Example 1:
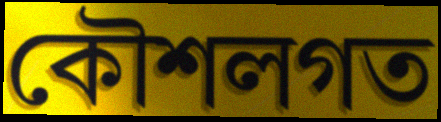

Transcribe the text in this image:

কৌশলগত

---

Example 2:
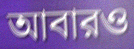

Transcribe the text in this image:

আবারও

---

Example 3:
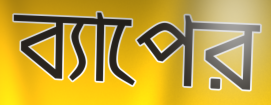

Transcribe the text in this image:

ব্যাপের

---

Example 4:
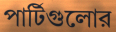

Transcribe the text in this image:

পার্টিগুলোর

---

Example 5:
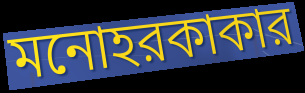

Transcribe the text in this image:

মনোহরকাকার